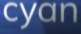
cyan